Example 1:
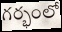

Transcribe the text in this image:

గర్భంలో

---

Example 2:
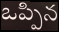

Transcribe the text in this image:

ఒప్పిన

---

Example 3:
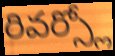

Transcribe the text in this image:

రివర్స్లో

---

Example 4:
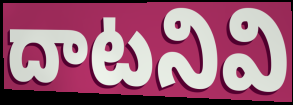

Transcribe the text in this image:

దాటనివి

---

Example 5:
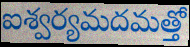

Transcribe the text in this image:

ఐశ్వర్యమదమత్తో